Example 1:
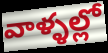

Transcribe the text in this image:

వాళ్ళల్లో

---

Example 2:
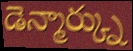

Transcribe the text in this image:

డెన్మార్క్ను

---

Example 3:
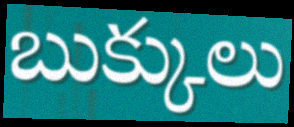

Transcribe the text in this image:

బుక్కులు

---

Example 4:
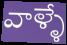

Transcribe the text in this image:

వాళ్ళే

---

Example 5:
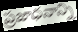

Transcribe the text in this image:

ప్రజాధనాన్ని